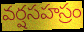
వర్షసహస్రం